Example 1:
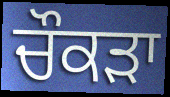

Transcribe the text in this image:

ਚੌਕੜਾ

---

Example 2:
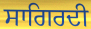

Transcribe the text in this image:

ਸਾਗਿਰਦੀ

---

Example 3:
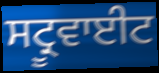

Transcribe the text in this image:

ਸਟ੍ਰੂਵਾਈਟ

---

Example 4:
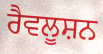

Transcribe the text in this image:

ਰੈਵਲੂਸ਼ਨ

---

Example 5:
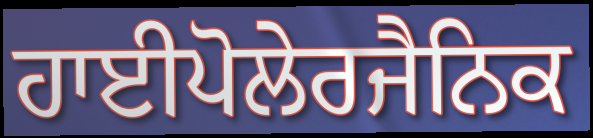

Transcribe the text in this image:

ਹਾਈਪੋਲੇਰਜੈਨਿਕ